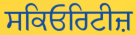
ਸਕਿਓਰਿਟੀਜ਼